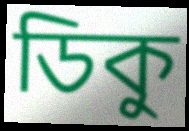
ডিকু